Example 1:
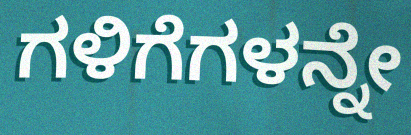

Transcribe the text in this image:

ಗಳಿಗೆಗಳನ್ನೇ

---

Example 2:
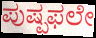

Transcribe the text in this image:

ಪುಷ್ಪಫಲೇ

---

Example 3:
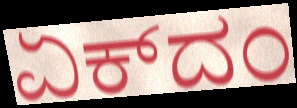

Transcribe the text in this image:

ಏಕ್‌ದಂ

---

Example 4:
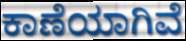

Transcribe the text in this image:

ಕಾಣೆಯಾಗಿವೆ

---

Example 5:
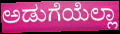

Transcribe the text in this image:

ಅಡುಗೆಯೆಲ್ಲಾ